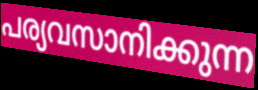
പര്യവസാനിക്കുന്ന